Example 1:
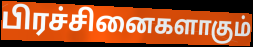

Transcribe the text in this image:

பிரச்சினைகளாகும்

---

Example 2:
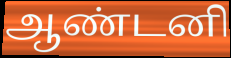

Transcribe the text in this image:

ஆண்டனி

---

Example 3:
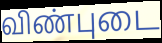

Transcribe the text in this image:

விண்புடை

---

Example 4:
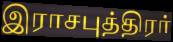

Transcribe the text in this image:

இராசபுத்திரர்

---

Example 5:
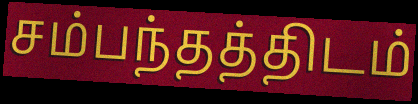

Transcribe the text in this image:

சம்பந்தத்திடம்